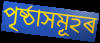
পৃষ্ঠাসমূহৰ